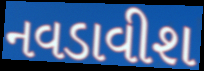
નવડાવીશ